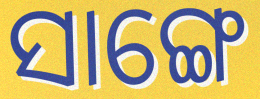
ସାଙ୍ଗେ